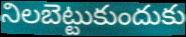
నిలబెట్టుకుందుకు